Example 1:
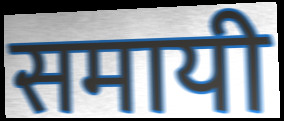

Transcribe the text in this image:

समायी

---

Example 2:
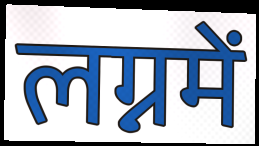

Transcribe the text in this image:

लग्नमें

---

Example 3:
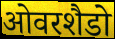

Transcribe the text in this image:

ओवरशैडो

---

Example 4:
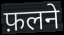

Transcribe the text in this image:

फ़लने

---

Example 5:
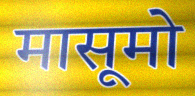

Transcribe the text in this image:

मासूमो